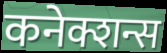
कनेक्शन्स